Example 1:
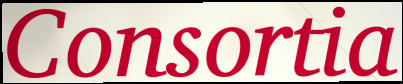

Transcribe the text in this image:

Consortia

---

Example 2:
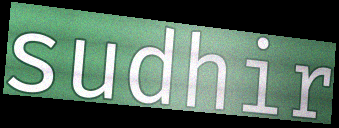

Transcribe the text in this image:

sudhir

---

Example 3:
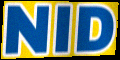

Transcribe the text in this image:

NID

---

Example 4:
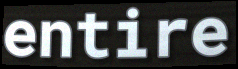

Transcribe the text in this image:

entire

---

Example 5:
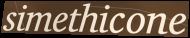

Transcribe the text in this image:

simethicone